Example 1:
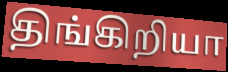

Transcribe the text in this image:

திங்கிறியா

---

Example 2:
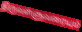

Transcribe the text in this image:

திருவள்ளுவரையும்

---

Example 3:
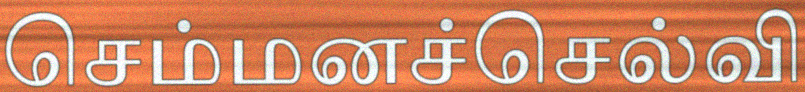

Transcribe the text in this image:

செம்மனச்செல்வி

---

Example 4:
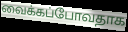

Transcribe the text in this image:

வைக்கப்போவதாக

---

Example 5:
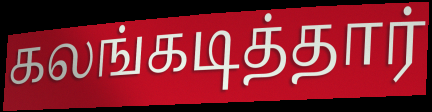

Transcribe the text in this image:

கலங்கடித்தார்